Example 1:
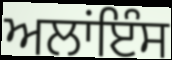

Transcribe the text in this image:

ਅਲਾਂਇੰਸ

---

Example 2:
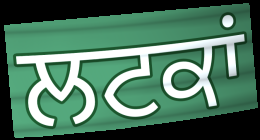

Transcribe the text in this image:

ਲਟਕਾਂ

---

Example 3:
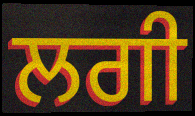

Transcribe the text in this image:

ਲਗੀ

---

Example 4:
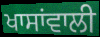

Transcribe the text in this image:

ਖਾਸਾਂਵਾਲੀ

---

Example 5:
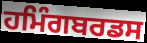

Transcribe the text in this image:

ਹਮਿੰਗਬਰਡਸ